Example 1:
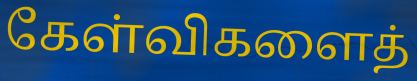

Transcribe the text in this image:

கேள்விகளைத்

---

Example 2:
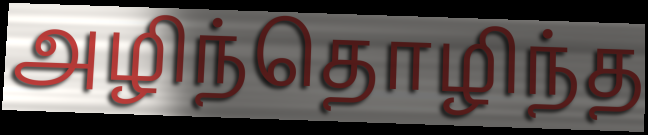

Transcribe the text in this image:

அழிந்தொழிந்த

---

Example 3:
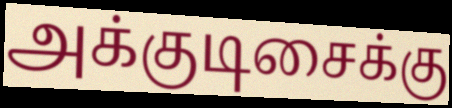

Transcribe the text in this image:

அக்குடிசைக்கு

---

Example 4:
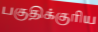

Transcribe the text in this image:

பகுதிக்குரிய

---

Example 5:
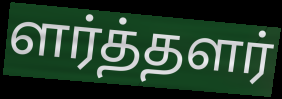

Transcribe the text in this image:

ளர்த்தளர்